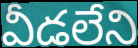
వీడలేని